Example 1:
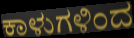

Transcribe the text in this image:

ಕಾಳುಗಳಿಂದ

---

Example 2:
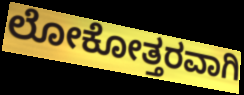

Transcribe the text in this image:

ಲೋಕೋತ್ತರವಾಗಿ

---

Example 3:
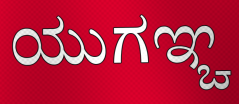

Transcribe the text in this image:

ಯುಗಞ್ಚ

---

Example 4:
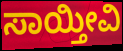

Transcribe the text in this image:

ಸಾಯ್ತೀವಿ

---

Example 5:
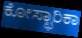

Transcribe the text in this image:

ಕೋಸ್ಟಾರಿಕಾ